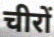
चीरों